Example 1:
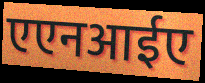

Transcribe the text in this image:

एएनआईए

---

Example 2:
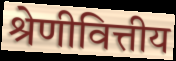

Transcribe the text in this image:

श्रेणीवित्तीय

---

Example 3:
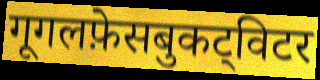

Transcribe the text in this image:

गूगलफ़ेसबुकट्विटर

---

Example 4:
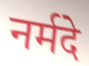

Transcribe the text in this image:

नर्मदे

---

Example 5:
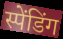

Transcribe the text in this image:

स्पेंडिंग